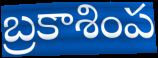
బ్రకాశింప